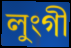
লুংগী